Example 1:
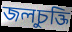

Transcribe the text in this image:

জলচুক্তি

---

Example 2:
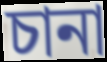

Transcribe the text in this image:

চানা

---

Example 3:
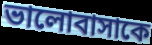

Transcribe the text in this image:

ভালোবাসাকে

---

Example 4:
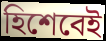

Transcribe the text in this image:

হিশেবেই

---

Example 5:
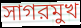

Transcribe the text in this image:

সাগরমুখ